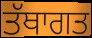
ਤੱਥਾਗਤ